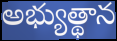
అభ్యుత్థాన